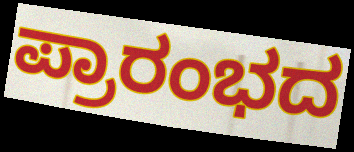
ಪ್ರಾರಂಭದ